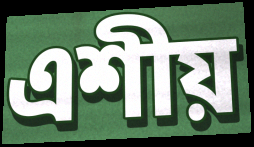
এশীয়